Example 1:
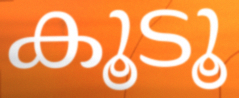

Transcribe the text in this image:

കൂടൂ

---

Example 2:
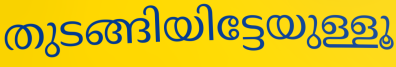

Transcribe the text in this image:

തുടങ്ങിയിട്ടേയുള്ളൂ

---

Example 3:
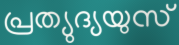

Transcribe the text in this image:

പ്രത്യുദ്യയുസ്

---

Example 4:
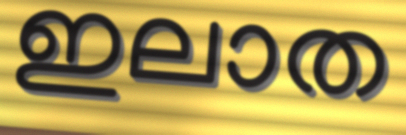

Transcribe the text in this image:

ഇലാത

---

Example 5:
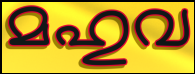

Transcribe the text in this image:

മഹുവ